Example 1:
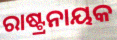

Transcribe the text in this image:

ରାଷ୍ଟ୍ରନାୟକ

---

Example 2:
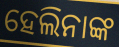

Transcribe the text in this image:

ହେଲିନାଙ୍କ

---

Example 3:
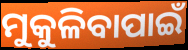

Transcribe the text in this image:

ମୁକୁଳିବାପାଇଁ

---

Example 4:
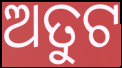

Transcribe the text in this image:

ଅତୁଟ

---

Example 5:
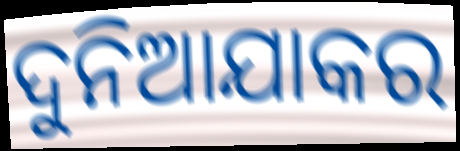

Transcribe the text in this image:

ଦୁନିଆଯାକର